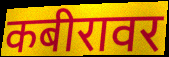
कबीरावर